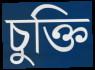
চুক্তি